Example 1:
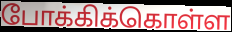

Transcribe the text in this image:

போக்கிக்கொள்ள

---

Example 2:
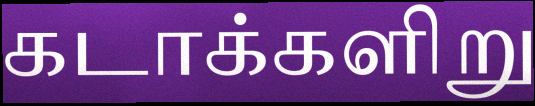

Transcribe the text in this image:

கடாக்களிறு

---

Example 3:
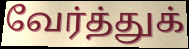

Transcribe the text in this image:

வேர்த்துக்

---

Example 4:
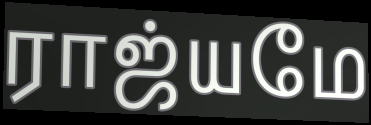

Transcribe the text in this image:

ராஜ்யமே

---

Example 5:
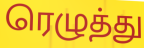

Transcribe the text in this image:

ரெழுத்து